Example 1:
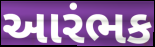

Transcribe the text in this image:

આરંભક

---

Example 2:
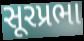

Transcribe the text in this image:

સૂરપ્રભા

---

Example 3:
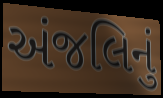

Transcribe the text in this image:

અંજલિનું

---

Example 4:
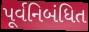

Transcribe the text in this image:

પૂર્વનિબંધિત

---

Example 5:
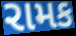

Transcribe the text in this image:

રામક